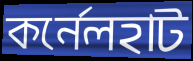
কর্নেলহাট